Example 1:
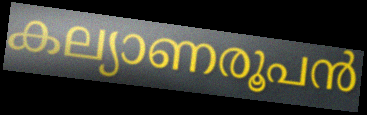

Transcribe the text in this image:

കല്യാണരൂപൻ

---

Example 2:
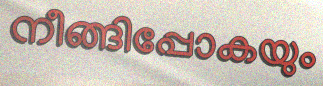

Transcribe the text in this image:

നീങ്ങിപ്പോകയും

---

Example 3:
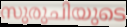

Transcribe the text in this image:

സുരുചിയുടെ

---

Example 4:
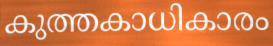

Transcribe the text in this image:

കുത്തകാധികാരം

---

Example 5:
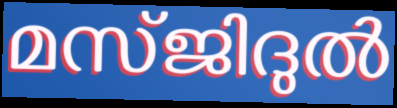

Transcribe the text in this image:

മസ്ജിദുൽ